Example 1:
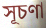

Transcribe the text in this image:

সূচণা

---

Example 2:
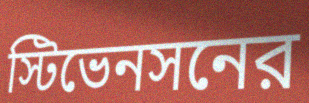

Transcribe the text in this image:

স্টিভেনসনের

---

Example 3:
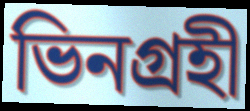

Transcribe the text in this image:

ভিনগ্রহী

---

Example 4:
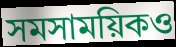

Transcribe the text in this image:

সমসাময়িকও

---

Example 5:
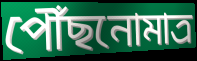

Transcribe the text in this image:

পৌঁছনোমাত্র